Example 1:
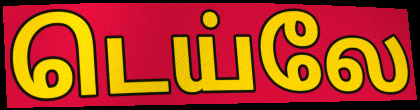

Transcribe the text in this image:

டெய்லே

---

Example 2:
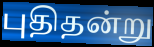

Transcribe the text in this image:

புதிதன்று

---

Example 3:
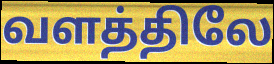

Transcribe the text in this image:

வளத்திலே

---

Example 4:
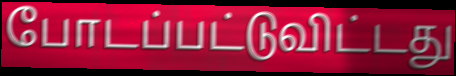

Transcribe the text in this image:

போடப்பட்டுவிட்டது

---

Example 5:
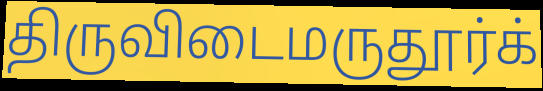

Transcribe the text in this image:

திருவிடைமருதூர்க்